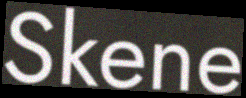
Skene